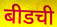
बीडची